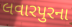
લવારપુરના